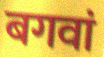
बगवां